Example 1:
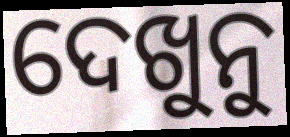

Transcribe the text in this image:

ଦେଖୁନୁ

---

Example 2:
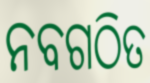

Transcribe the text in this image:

ନବଗଠିତ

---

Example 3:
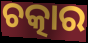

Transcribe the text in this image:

ଚତ୍କାର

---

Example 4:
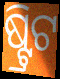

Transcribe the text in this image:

ଷ୍ଟ୍ରିଟ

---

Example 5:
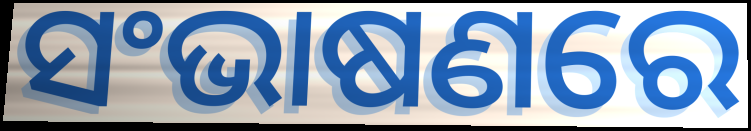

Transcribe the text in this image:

ସଂଭାଷଣରେ